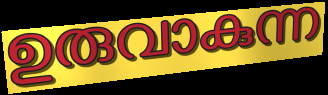
ഉരുവാകുന്ന